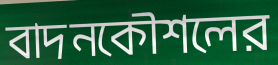
বাদনকৌশলের